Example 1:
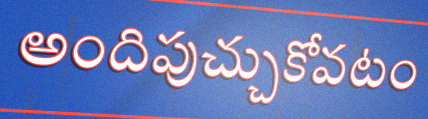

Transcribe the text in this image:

అందిపుచ్చుకోవటం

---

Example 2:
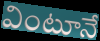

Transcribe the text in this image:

వింటూనే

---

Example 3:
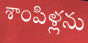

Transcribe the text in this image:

శాంపిళ్లను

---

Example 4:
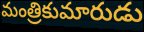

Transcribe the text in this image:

మంత్రికుమారుడు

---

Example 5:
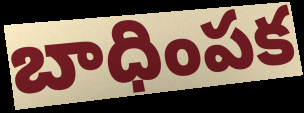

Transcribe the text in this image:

బాధింపక